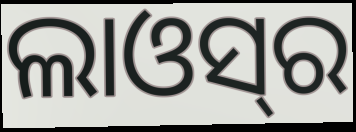
ଲାଓସ୍‌ର